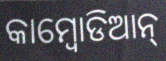
କାମ୍ବୋଡିଆନ୍